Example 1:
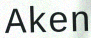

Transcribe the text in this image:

Aken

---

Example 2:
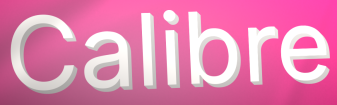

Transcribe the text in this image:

Calibre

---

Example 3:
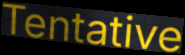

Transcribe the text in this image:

Tentative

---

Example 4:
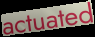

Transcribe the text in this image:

actuated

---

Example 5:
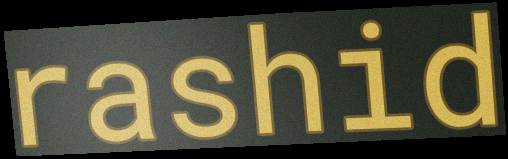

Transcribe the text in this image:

rashid